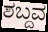
ಶಬ್ದವ